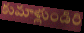
కుమాళ్లుండిరి